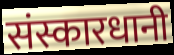
संस्कारधानी